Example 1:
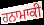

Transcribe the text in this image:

ਹਨਾਮਾਕੀ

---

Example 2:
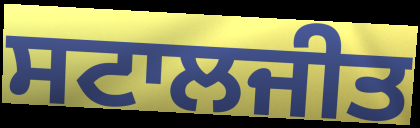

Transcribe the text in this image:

ਸਟਾਲਜੀਤ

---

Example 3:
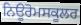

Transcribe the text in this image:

ਨਿਊਰੋਮਸਕੂਲਰ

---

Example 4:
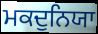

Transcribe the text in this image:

ਮਕਦੁਨਿਯਾ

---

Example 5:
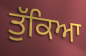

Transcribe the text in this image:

ਤੁੱਕਿਆ